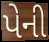
પેની